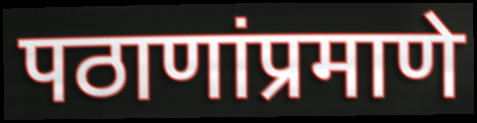
पठाणांप्रमाणे